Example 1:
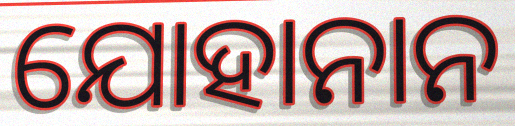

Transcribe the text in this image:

ଯୋହାନାନ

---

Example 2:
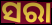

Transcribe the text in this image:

ସରା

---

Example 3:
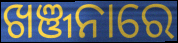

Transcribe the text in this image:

ଖଞ୍ଜନାରେ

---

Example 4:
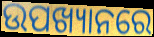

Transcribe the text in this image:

ଉପଖ୍ୟାନରେ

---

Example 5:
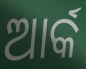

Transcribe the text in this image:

ଆର୍କ